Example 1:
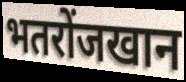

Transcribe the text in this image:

भतरोंजखान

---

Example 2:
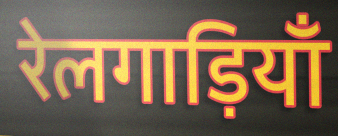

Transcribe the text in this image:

रेलगाड़ियाँ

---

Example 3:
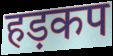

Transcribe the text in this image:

हड़कप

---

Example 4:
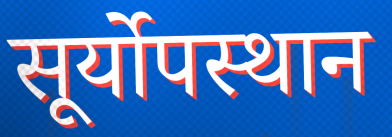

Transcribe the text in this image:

सूर्योपस्थान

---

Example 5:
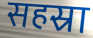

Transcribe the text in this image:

सहस्रा